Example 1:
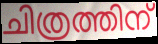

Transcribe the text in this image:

ചിത്രത്തിന്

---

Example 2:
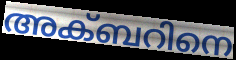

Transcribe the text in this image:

അക്ബറിനെ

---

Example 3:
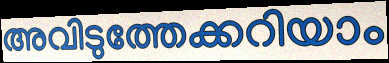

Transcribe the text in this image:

അവിടുത്തേക്കറിയാം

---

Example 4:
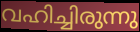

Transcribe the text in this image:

വഹിച്ചിരുന്നു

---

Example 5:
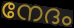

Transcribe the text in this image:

നേദം